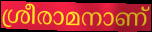
ശ്രീരാമനാണ്